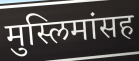
मुस्लिमांसह